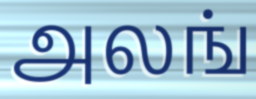
அலங்